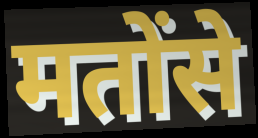
मतोंसे